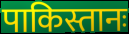
पाकिस्तानः